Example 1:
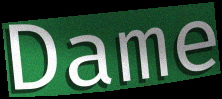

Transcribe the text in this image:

Dame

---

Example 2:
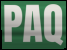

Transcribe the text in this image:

PAQ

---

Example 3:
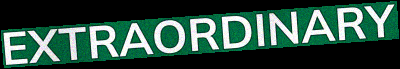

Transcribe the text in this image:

EXTRAORDINARY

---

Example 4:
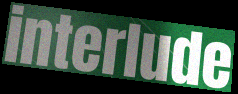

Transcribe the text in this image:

interlude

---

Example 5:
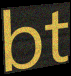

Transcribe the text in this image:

bt